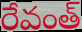
రేవంత్